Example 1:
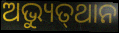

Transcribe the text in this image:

ଅଭ୍ୟୁତ୍‌ଥାନ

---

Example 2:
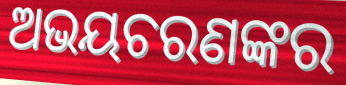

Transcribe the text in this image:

ଅଭୟଚରଣଙ୍କର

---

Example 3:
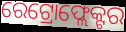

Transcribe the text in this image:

ରେଟ୍ରୋଫ୍ଲେକ୍ଟର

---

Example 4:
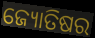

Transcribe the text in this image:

ଜ୍ୟୋତିଷର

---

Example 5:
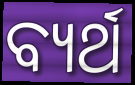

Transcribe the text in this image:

ବ୍ଯର୍ଥ